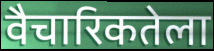
वैचारिकतेला